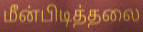
மீன்பிடித்தலை